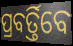
ପ୍ରବର୍ତ୍ତିବେ